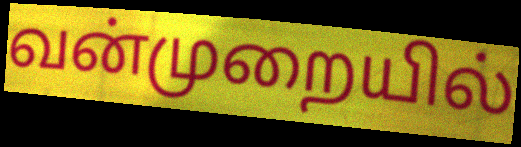
வன்முறையில்